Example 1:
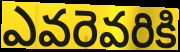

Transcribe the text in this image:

ఎవరెవరికి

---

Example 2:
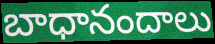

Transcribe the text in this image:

బాధానందాలు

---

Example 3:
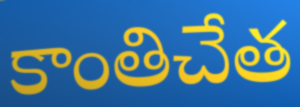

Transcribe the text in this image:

కాంతిచేత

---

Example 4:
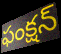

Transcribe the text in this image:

ఫంక్షన్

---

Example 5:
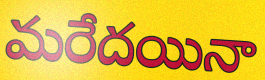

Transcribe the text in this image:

మరేదయినా